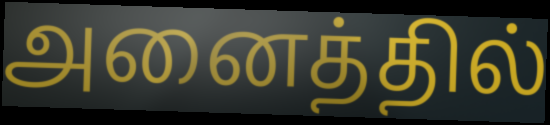
அனைத்தில்